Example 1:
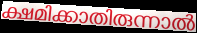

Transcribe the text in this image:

ക്ഷമിക്കാതിരുന്നാൽ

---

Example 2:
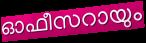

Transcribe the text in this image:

ഓഫീസറായും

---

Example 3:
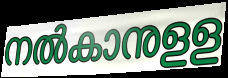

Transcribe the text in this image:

നൽകാനുളള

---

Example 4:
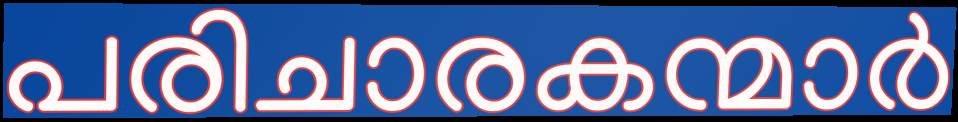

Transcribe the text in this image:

പരിചാരകന്മാർ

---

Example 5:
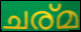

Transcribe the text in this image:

ചര്മ